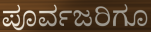
ಪೂರ್ವಜರಿಗೂ